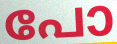
പോ